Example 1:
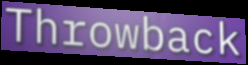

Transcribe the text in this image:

Throwback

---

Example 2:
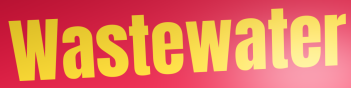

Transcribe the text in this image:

Wastewater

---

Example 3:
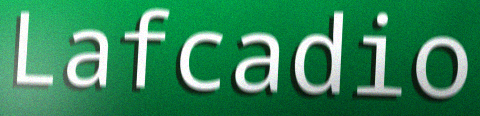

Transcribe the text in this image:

Lafcadio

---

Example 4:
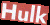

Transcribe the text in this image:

Hulk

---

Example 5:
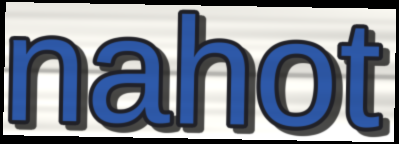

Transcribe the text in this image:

nahot